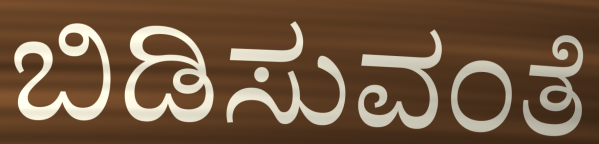
ಬಿಡಿಸುವಂತೆ